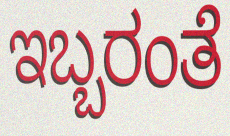
ಇಬ್ಬರಂತೆ